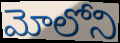
మోలోని